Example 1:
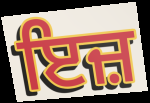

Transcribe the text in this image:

ਇਜ਼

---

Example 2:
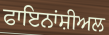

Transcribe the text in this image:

ਫਾਇਨਾਂਸ਼ੀਅਲ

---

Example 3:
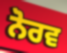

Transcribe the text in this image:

ਨੋਰਵ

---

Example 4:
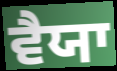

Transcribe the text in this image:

ਵੈਯਾ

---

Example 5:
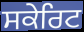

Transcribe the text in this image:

ਸਕੇਰਿਟ